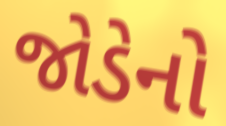
જોડેનો